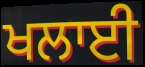
ਖਲਾਈ